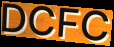
DCFC